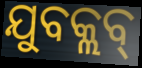
ଯୁବକ୍ଲବ୍